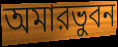
অমারভুবন